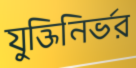
যুক্তিনির্ভর